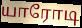
யாரோடி